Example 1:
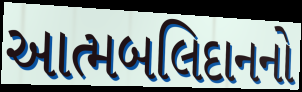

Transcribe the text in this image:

આત્મબલિદાનનો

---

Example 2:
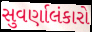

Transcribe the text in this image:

સુવર્ણાલંકારો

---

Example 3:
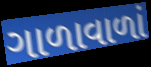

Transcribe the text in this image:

ગાળાવાળાં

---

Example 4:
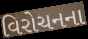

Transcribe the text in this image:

વિરોચનના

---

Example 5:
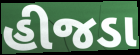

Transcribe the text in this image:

હીજડા